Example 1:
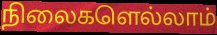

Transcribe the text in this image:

நிலைகளெல்லாம்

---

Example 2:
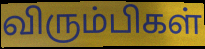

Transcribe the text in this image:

விரும்பிகள்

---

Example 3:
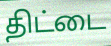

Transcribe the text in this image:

திட்டை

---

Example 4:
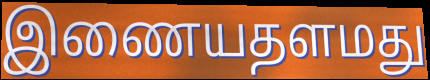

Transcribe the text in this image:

இணையதளமது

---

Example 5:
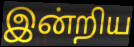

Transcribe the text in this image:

இன்றிய